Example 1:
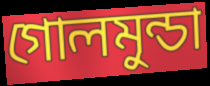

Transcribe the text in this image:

গোলমুন্ডা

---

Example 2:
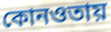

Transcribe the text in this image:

কোনওতায়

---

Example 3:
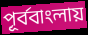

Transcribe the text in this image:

পূর্ববাংলায়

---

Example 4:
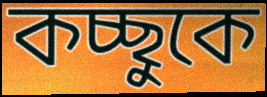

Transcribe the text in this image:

কচ্ছুকে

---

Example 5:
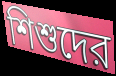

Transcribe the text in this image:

শিশুদের